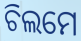
ଚିଲମେ